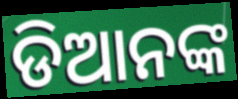
ଡିଆନଙ୍କ